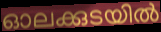
ഓലക്കുടയിൽ